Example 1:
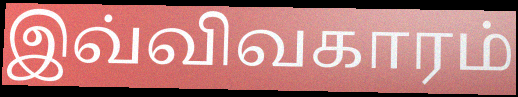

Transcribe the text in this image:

இவ்விவகாரம்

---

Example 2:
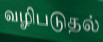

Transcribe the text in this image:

வழிபடுதல்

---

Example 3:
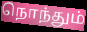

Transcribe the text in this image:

நொந்தும்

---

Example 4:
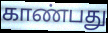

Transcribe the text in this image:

காண்பது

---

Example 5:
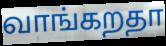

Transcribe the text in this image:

வாங்கறதா